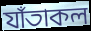
যাঁতাকল